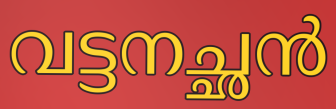
വട്ടനച്ഛൻ